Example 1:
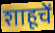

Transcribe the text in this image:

शाहूचें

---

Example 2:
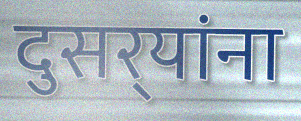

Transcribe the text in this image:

दुसर्‍यांना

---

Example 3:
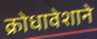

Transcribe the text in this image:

क्रोधावेशाने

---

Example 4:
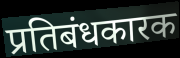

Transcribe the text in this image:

प्रतिबंधकारक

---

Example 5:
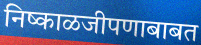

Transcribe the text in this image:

निष्काळजीपणाबाबत